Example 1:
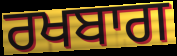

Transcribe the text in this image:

ਰਖਬਾਗ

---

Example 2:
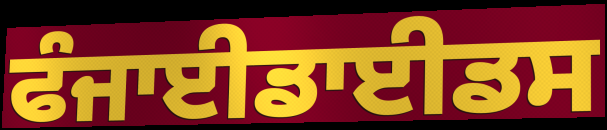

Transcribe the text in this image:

ਫੰਜਾਈਡਾਈਡਸ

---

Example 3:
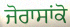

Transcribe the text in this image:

ਜੋਰਾਸਾਂਕੋ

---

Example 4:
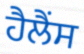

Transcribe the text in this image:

ਹੈਲੈਂਸ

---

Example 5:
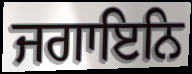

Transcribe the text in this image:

ਜਗਾਇਨਿ